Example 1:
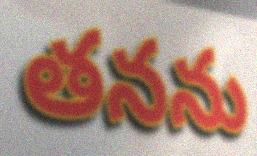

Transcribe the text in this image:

తనను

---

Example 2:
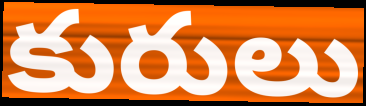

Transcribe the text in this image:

కురులు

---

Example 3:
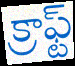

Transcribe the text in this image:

క్రాఫ్ట్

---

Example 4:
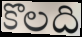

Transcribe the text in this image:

కొలది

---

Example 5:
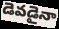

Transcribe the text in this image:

డెవడైనా